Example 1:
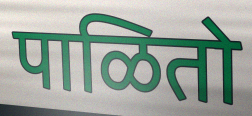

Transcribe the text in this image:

पाळितो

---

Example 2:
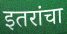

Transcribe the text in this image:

इतरांचा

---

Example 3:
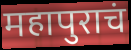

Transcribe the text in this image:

महापुराचं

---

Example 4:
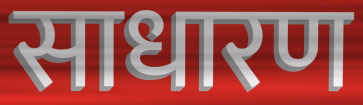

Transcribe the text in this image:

साधारण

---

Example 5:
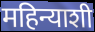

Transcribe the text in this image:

महिन्याशी